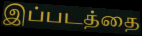
இப்படத்தை